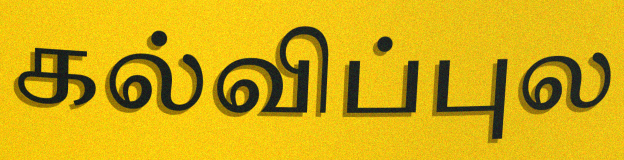
கல்விப்புல